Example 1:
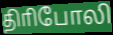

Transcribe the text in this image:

திரிபோலி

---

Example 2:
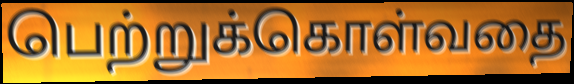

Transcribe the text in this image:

பெற்றுக்கொள்வதை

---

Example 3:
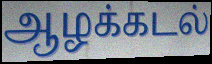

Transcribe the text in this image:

ஆழக்கடல்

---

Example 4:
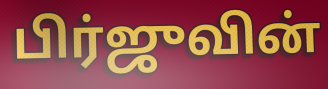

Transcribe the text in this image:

பிர்ஜுவின்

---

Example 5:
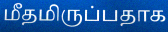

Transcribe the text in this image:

மீதமிருப்பதாக